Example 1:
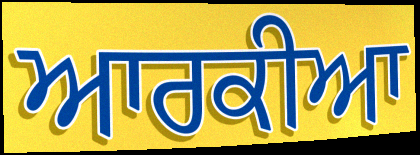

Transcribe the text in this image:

ਆਰਕੀਆ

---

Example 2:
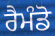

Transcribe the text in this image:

ਰੈਮੰਡੋ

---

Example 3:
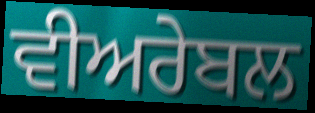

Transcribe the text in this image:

ਵੀਅਰੇਬਲ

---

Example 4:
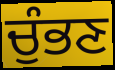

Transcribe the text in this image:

ਚੁੰਭਣ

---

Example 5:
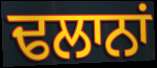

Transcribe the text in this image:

ਢਲਾਨਾਂ